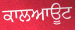
ਕਾਲਆਊਟ